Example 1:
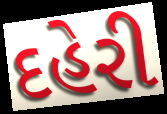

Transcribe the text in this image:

દહેરી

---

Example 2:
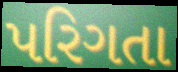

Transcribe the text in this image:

પરિગતા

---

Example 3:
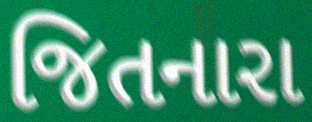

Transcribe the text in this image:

જિતનારા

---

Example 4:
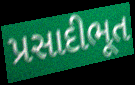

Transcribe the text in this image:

પ્રસાદીભૂત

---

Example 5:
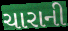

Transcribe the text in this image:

ચારાની